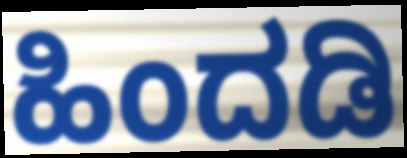
ಹಿಂದಡಿ